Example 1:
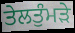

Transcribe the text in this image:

ਤੇਲਤੁੰਮੜੇ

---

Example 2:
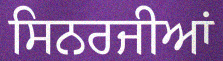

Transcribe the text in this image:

ਸਿਨਰਜੀਆਂ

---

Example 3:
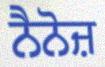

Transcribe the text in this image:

ਨੈਨੋਜ਼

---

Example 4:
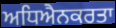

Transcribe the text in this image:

ਅਧਿਐਨਕਰਤਾ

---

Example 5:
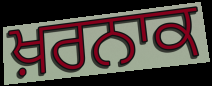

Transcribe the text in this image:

ਖ਼ਰਨਾਕ